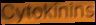
Cytokinins